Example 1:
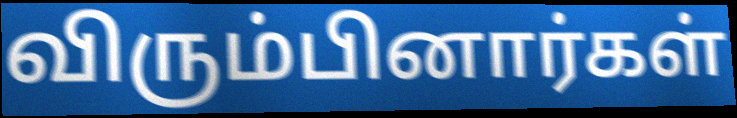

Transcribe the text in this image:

விரும்பினார்கள்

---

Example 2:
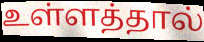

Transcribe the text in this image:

உள்ளத்தால்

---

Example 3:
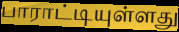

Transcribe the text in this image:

பாராட்டியுள்ளது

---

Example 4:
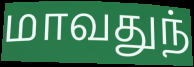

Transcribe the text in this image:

மாவதுந்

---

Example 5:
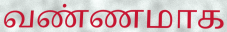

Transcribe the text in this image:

வண்ணமாக